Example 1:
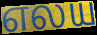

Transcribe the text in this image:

எலய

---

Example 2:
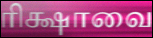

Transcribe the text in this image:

ரிக்ஷாவை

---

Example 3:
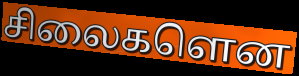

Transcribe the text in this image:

சிலைகளென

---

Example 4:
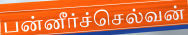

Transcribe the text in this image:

பன்னீர்ச்செல்வன்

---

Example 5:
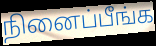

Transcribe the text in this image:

நினைப்பீங்க